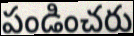
పండించరు